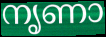
നൃണാ